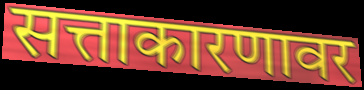
सत्ताकारणावर